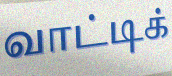
வாட்டிக்